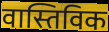
वास्तिविक